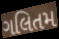
ગલિતમ